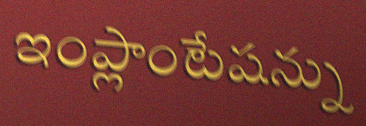
ఇంప్లాంటేషన్ను